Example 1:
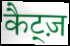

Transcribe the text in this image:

कैट्ज़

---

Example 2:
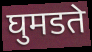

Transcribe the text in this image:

घुमडते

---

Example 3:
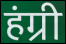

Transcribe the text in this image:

हंग्री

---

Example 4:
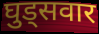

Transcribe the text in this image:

घुड्सवार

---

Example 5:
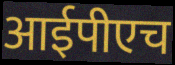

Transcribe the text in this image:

आईपीएच